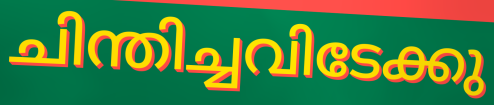
ചിന്തിച്ചവിടേക്കു